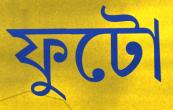
ফুটো